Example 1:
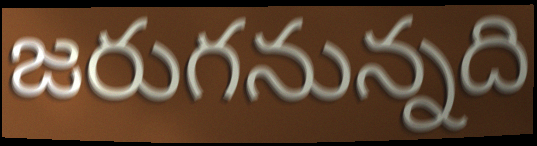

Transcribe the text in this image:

జరుగనున్నది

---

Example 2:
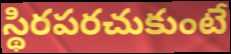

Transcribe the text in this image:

స్థిరపరచుకుంటే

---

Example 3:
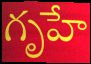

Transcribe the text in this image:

గృహే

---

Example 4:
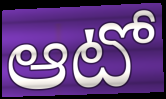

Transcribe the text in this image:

ఆటో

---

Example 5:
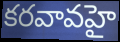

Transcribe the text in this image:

కరవావహై